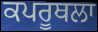
ਕਪਰੂਥਲਾ